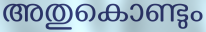
അതുകൊണ്ടും